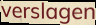
verslagen